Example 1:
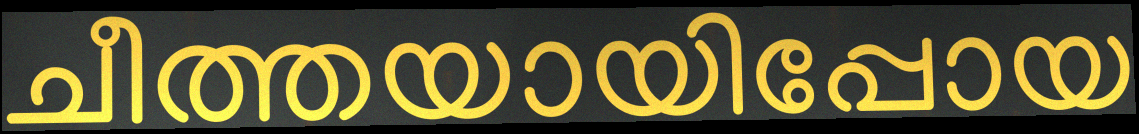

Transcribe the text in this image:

ചീത്തയായിപ്പോയ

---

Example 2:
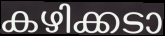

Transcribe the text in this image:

കഴിക്കടാ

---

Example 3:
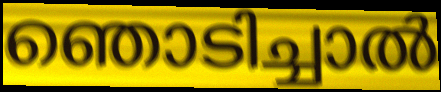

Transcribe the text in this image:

ഞൊടിച്ചാൽ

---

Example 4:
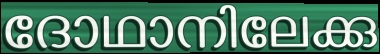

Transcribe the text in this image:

ദോഥാനിലേക്കു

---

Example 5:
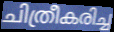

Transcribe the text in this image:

ചിത്രീകരിച്ച